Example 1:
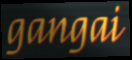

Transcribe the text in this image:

gangai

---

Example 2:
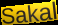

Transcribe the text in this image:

Sakal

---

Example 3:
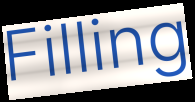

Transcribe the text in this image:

Filling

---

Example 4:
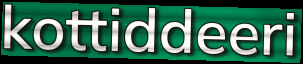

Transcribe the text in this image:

kottiddeeri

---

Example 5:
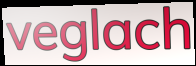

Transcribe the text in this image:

veglach